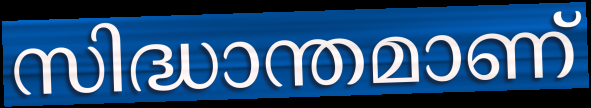
സിദ്ധാന്തമാണ്